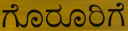
ಗೊರೂರಿಗೆ